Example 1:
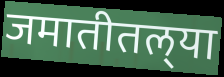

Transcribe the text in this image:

जमातीतल्या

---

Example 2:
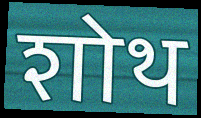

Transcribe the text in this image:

शोथ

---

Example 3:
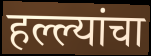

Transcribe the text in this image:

हल्ल्यांचा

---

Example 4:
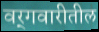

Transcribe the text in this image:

वर्गवारीतील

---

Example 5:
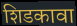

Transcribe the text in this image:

शिडकावा